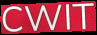
CWIT